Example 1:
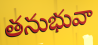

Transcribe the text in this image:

తనుభువా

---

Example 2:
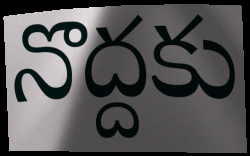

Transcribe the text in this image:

నొద్దకు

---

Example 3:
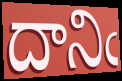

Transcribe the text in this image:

దానిఁ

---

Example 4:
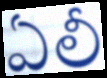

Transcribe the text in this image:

ఏలీ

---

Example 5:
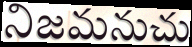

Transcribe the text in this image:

నిజమనుచు